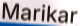
Marikar